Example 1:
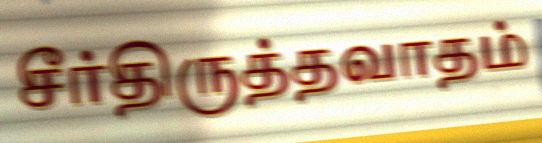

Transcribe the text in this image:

சீர்திருத்தவாதம்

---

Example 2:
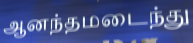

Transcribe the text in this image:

ஆனந்தமடைந்து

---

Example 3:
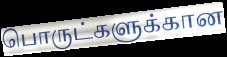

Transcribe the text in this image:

பொருட்களுக்கான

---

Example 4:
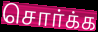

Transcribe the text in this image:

சொர்க்க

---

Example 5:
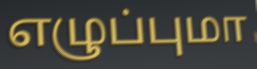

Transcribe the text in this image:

எழுப்புமா